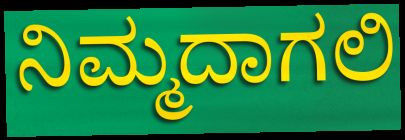
ನಿಮ್ಮದಾಗಲಿ